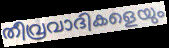
തീവ്രവാദികളെയും